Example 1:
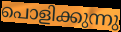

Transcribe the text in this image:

പൊളിക്കുന്നു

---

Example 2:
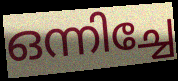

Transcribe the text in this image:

ഒന്നിച്ചേ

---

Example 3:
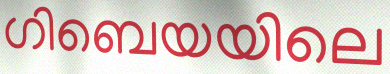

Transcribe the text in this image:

ഗിബെയയിലെ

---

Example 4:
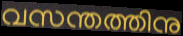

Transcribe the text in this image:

വസന്തത്തിനു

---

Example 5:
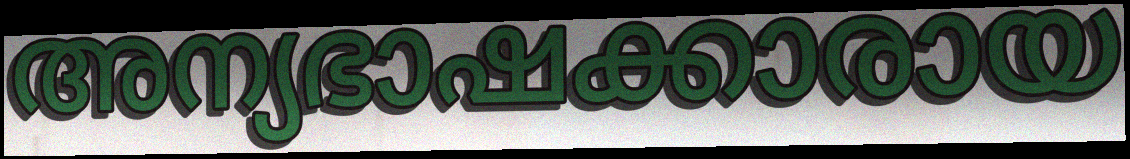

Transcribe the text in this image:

അന്യഭാഷക്കാരായ